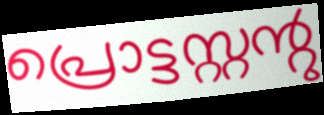
പ്രൊട്ടസ്റ്റന്റു